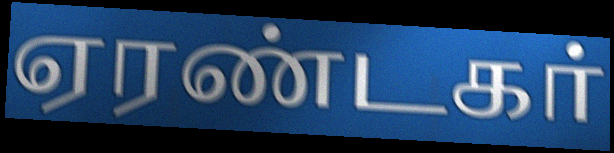
ஏரண்டகர்